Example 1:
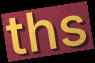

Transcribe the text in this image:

ths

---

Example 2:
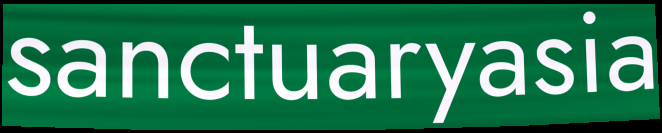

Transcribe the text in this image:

sanctuaryasia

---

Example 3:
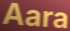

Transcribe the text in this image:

Aara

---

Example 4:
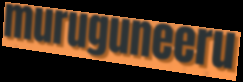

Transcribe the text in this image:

muruguneeru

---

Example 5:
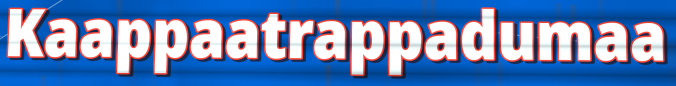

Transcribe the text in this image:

Kaappaatrappadumaa